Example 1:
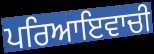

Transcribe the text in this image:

ਪਰਿਆਇਵਾਚੀ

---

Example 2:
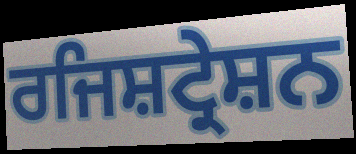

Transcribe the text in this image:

ਰਜਿਸ਼ਟ੍ਰੇਸ਼ਨ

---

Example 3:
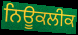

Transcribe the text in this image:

ਨਿਊਕਲੀਕ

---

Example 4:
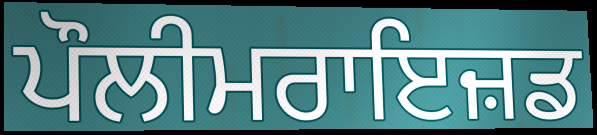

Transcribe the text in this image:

ਪੌਲੀਮਰਾਇਜ਼ਡ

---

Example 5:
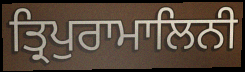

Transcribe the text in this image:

ਤ੍ਰਿਪੁਰਾਮਾਲਿਨੀ